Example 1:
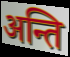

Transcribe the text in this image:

अन्ति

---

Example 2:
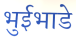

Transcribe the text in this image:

भुईभाडे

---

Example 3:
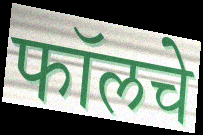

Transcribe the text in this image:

फॉलचे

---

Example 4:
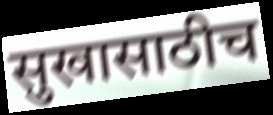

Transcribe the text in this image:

सुखासाठीच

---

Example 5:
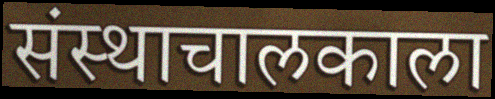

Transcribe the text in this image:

संस्थाचालकाला